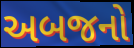
અબજનો